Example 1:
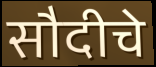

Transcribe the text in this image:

सौदीचे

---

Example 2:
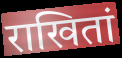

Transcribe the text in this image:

राखितां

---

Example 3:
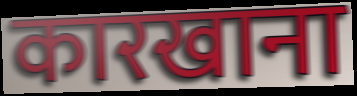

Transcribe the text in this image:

कारखाना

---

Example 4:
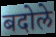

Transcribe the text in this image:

बदोले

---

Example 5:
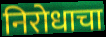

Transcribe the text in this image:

निरोधाचा